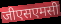
जीएसएमसी